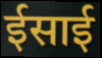
ईसाई